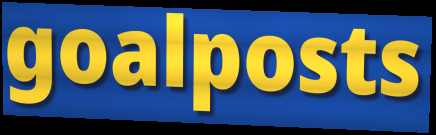
goalposts